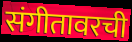
संगीतावरची